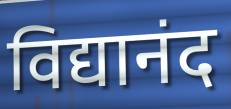
विद्यानंद